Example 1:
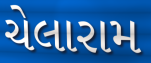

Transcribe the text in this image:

ચેલારામ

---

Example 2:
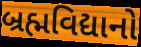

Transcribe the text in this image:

બ્રહ્મવિદ્યાનો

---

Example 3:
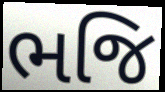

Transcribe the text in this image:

ભજિ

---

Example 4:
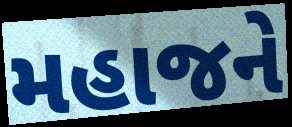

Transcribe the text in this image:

મહાજને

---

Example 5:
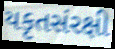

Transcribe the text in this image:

યકૃતસંરક્ષી